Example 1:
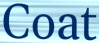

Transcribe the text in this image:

Coat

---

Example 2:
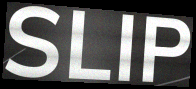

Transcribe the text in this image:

SLIP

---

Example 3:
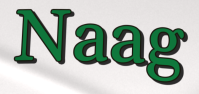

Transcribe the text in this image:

Naag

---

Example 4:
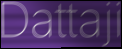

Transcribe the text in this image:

Dattaji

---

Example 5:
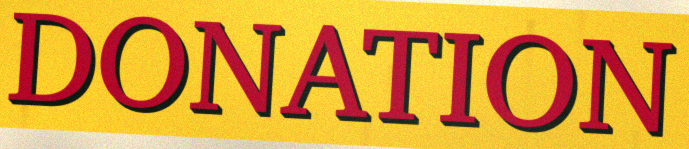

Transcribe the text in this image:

DONATION